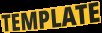
TEMPLATE